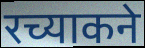
रच्याकने